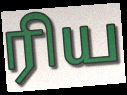
ரிய